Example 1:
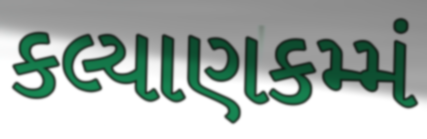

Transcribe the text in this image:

કલ્યાણકમ્મં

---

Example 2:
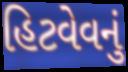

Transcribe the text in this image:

હિટવેવનું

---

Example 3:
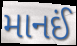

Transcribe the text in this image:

માનઈં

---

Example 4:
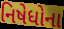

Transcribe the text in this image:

નિષેધોના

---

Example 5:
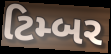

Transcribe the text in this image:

ટિમ્બર